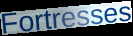
Fortresses